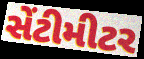
સેંટીમીટર